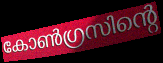
കോൺഗ്രസിന്റെ